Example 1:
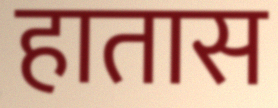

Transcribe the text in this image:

हातास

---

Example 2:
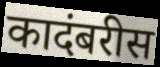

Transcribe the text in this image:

कादंबरीस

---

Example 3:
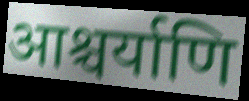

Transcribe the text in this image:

आश्चर्याणि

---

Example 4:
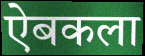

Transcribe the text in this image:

ऐबकला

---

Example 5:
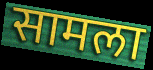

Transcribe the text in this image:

सामला